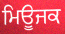
ਮਿਊਜਕ